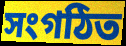
সংগঠিত